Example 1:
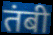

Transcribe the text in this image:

तंबी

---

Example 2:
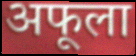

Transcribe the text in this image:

अफूला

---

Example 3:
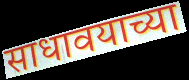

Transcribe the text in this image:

साधावयाच्या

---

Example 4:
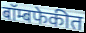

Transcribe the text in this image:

बॉम्बफेकीत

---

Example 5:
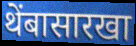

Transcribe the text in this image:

थेंबासारखा